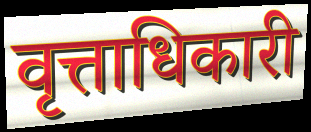
वृत्ताधिकारी